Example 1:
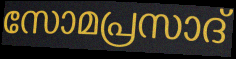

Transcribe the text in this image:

സോമപ്രസാദ്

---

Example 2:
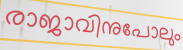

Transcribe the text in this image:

രാജാവിനുപോലും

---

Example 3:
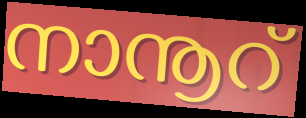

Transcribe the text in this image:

നാനൂറ്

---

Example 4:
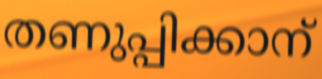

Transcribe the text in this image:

തണുപ്പിക്കാന്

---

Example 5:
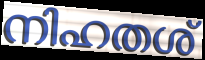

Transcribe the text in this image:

നിഹതശ്